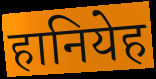
हानियेह